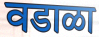
वडाळा